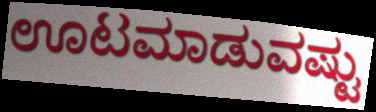
ಊಟಮಾಡುವಷ್ಟು